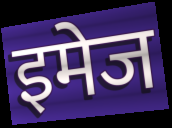
इमेज